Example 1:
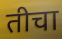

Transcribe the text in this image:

तीचा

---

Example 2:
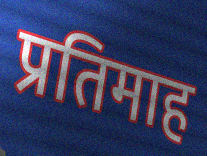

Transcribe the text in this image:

प्रतिमाह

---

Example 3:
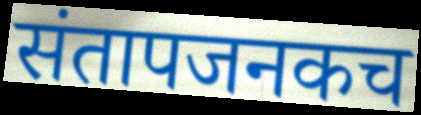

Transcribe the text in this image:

संतापजनकच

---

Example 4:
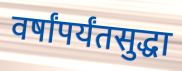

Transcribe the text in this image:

वर्षांपर्यंतसुद्धा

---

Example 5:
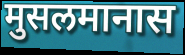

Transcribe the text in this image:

मुसलमानास